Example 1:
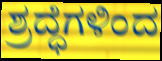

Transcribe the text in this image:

ಶ್ರದ್ಧೆಗಳಿಂದ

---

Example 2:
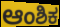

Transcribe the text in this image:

ಆಂಶಿಕ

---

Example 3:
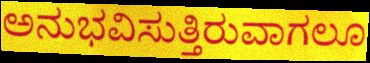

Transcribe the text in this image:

ಅನುಭವಿಸುತ್ತಿರುವಾಗಲೂ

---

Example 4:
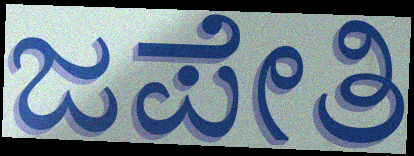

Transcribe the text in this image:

ಜಪೇತಿ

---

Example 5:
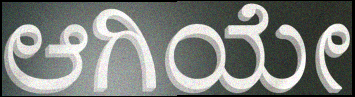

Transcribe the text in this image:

ಆಗಿಯೇ